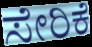
ಸೇರಿಕೆ